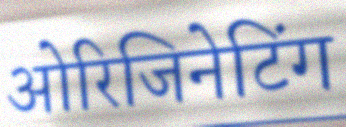
ओरिजिनेटिंग